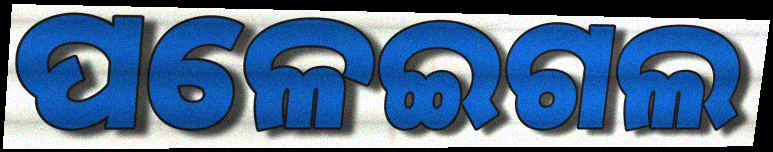
ପଳେଇଗଲ